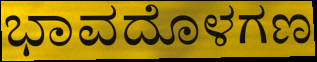
ಭಾವದೊಳಗಣ